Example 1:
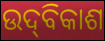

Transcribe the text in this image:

ଉଦ୍‌ବିକାଶ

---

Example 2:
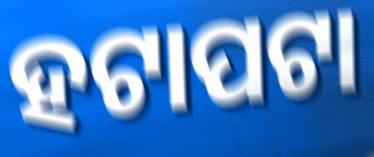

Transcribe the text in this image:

ହଟାପଟା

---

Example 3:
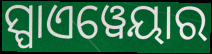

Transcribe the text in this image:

ସ୍ପାଏୱେୟାର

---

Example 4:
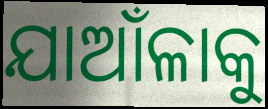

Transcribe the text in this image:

ଯାଆଁଳାକୁ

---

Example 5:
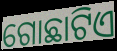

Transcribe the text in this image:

ଗୋଛାଟିଏ